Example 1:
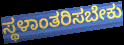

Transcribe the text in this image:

ಸ್ಥಳಾಂತರಿಸಬೇಕು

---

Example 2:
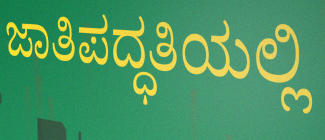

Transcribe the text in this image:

ಜಾತಿಪದ್ಧತಿಯಲ್ಲಿ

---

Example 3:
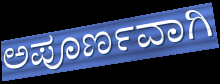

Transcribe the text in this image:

ಅಪೂರ್ಣವಾಗಿ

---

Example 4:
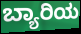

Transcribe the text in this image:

ಬ್ಯಾರಿಯ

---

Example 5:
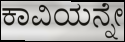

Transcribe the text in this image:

ಕಾವಿಯನ್ನೇ